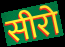
सीरो